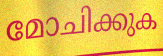
മോചിക്കുക